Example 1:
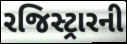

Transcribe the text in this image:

રજિસ્ટ્રારની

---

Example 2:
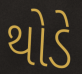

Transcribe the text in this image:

થોડે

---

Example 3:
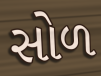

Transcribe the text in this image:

સોળ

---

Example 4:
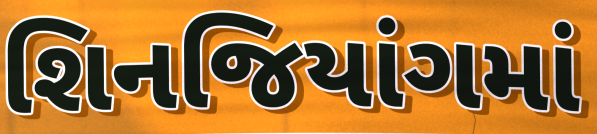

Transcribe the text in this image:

શિનજિયાંગમાં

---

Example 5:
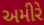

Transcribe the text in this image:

અમીરે